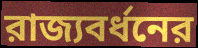
রাজ্যবর্ধনের